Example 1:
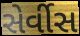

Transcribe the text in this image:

સેર્વીસ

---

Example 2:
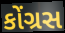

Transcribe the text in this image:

કોંગ્રસ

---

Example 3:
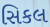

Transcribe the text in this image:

સિકલ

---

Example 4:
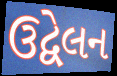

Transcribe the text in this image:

ઉદ્વેલન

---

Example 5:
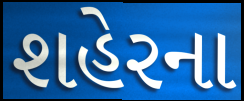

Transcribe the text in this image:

શહેરના